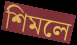
শিমলে